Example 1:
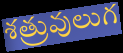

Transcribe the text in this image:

శత్రువులుగ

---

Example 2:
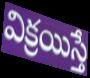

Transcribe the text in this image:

విక్రయిస్తే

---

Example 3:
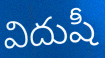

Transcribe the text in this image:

విదుషీ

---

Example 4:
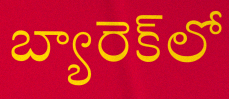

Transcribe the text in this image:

బ్యారెక్‌లో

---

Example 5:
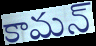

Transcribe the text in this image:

కామన్